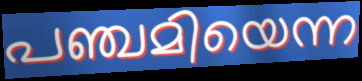
പഞ്ചമിയെന്ന